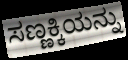
ಸಣ್ಣಕ್ಕಿಯನ್ನು